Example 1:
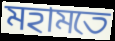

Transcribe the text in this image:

মহামতে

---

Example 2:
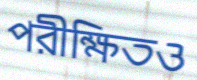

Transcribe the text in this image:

পরীক্ষিতও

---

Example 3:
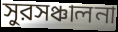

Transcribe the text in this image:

সুরসঞ্চালনা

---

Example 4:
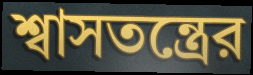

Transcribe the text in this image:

শ্বাসতন্ত্রের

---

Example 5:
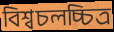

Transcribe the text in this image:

বিশ্বচলচ্চিত্র